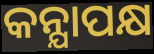
କନ୍ଯାପକ୍ଷ